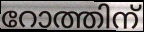
റോത്തിന്